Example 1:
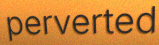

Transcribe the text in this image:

perverted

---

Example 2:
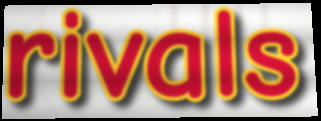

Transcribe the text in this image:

rivals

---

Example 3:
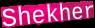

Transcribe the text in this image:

Shekher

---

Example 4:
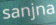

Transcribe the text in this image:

sanjna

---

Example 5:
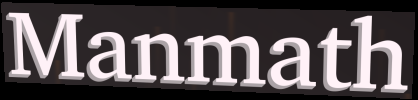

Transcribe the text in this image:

Manmath